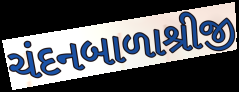
ચંદનબાળાશ્રીજી